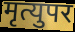
मृत्युपर